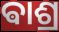
ଵାଶ୍ର